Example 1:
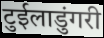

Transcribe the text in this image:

टुईलाडुंगरी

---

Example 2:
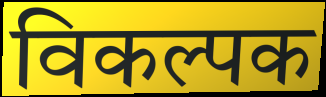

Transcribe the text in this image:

विकल्पक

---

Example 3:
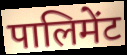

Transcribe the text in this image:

पालिमेंट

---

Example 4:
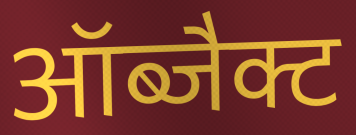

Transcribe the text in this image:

ऑब्जैक्ट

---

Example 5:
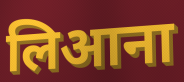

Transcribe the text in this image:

लिआना